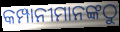
କମ୍ପାନୀମାନଙ୍କଠୁ